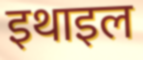
इथाइल